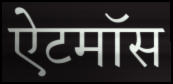
ऐटमॉस